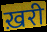
ख़री